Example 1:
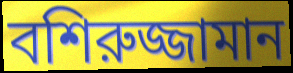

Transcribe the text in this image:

বশিরুজ্জামান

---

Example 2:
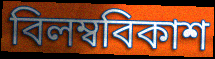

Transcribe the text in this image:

বিলম্ববিকাশ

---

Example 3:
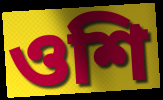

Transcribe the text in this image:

ওশি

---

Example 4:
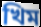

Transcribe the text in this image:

খিম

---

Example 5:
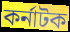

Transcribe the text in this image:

কর্নাটক